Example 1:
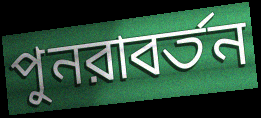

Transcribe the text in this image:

পুনরাবর্তন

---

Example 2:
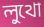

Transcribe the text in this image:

লুথো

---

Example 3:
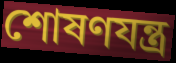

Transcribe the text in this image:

শোষণযন্ত্র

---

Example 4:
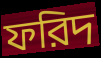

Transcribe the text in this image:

ফরিদ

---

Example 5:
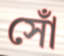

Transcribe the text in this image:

সোঁ